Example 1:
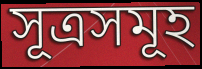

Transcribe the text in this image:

সূত্ৰসমূহ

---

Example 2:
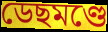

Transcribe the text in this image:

ডেছমণ্ডে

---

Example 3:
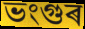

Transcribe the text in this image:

ভংগুৰ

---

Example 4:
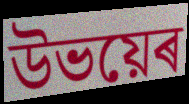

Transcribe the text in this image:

উভয়েৰ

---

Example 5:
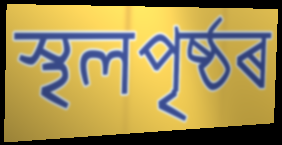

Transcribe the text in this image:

স্থলপৃষ্ঠৰ